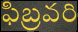
ఫిబ్రవరి